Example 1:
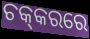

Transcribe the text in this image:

ଚକ୍‌କରରେ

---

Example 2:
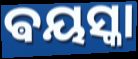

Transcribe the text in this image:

ଵୟସ୍କା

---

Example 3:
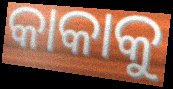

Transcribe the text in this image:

କାକାକୁ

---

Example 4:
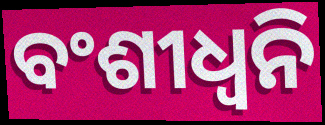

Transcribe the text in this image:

ବଂଶୀଧ୍ବନି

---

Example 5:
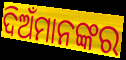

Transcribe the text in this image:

ଦିଅଁମାନଙ୍କର